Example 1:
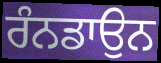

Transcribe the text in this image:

ਰੰਨਡਾਉਨ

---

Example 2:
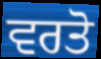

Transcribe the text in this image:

ਵਰਤੋ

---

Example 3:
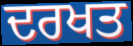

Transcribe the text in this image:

ਦਰਖਤ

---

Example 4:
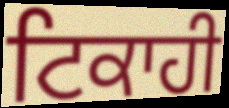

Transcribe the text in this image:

ਟਿਕਾਹੀ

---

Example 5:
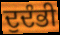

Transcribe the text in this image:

ਦੁਦੰਭੀ